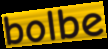
bolbe